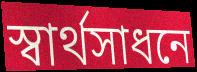
স্বার্থসাধনে